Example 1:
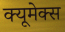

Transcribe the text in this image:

क्यूमेक्स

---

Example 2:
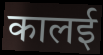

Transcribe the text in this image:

कालई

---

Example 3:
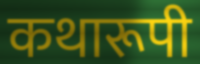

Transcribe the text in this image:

कथारूपी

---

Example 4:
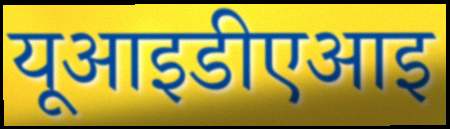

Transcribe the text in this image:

यूआइडीएआइ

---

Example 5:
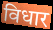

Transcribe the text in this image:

विधार